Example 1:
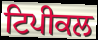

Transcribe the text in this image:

ਟਿਪੀਕਲ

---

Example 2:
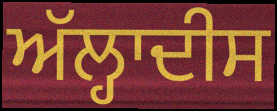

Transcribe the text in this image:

ਅੱਲ੍ਹਾਦੀਸ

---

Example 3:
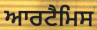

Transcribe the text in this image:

ਆਰਟੈਮਿਸ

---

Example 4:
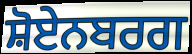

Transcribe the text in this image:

ਸ਼ੋਏਨਬਰਗ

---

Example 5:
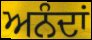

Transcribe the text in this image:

ਅਨੰਦਾਂ